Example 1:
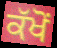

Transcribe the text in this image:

ਕੱਖੋਂ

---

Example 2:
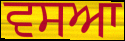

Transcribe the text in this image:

ਵਸਆ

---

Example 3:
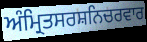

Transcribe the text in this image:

ਅੰਮ੍ਰਿਤਸਰਸ਼ਨਿਚਰਵਾਰ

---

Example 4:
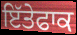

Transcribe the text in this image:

ਇੱਤੇਫਾਕ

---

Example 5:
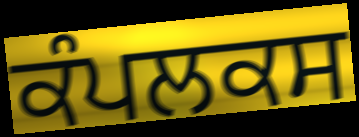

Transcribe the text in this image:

ਕੰਪਲਕਸ